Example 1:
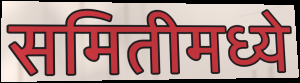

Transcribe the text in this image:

समितीमध्ये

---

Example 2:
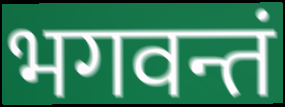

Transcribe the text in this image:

भगवन्तं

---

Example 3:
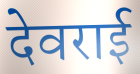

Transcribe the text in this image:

देवराई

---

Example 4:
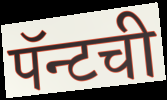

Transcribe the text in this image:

पॅन्टची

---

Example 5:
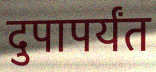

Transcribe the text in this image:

दुपापर्यंत